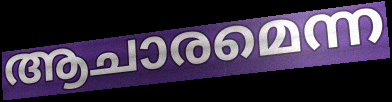
ആചാരമെന്ന